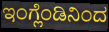
ಇಂಗ್ಲೆಂಡಿನಿಂದ